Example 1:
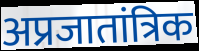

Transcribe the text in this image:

अप्रजातांत्रिक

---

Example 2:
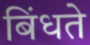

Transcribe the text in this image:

बिंधते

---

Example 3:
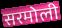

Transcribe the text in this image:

सरमोली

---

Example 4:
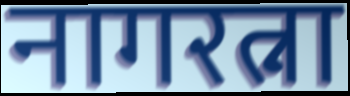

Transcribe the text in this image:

नागरत्ना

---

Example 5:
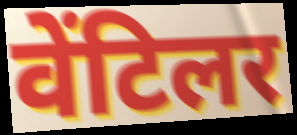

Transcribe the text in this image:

वेंटिलर